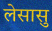
लेसासु